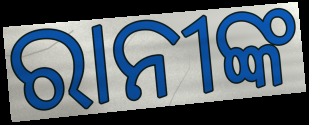
ରାନୀଙ୍କ